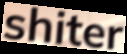
shiter